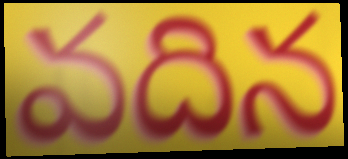
వదిన